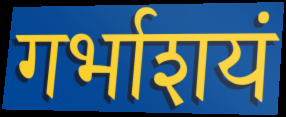
गर्भाशयं